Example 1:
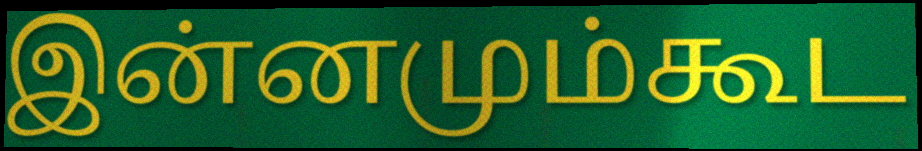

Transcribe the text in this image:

இன்னமும்கூட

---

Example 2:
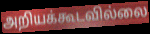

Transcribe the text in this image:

அறியக்கூடவில்லை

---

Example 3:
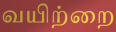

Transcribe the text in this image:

வயிற்றை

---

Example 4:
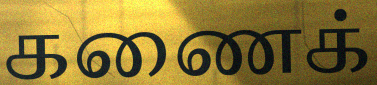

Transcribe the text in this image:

கணைக்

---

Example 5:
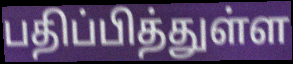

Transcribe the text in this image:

பதிப்பித்துள்ள